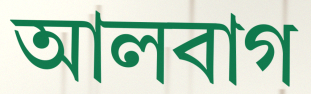
আলবাগ